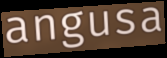
angusa